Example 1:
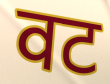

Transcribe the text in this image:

वट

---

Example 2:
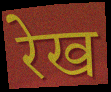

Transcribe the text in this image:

रेख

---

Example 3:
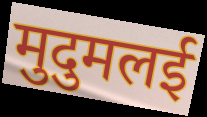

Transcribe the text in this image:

मुदुमलई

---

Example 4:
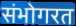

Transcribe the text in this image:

संभोगरत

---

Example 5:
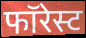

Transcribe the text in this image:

फॉरेस्ट